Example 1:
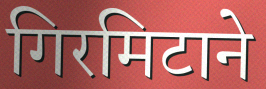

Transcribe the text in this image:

गिरमिटाने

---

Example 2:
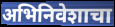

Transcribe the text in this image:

अभिनिवेशाचा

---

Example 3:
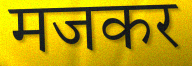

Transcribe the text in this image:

मजकर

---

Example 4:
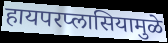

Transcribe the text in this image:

हायपरप्लासियामुळे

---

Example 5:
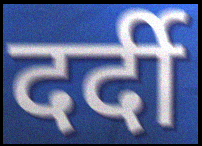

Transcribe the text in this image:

दर्दी